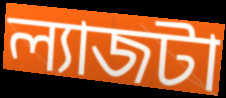
ল্যাজটা